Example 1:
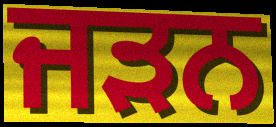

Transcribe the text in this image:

ਜੜਨ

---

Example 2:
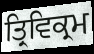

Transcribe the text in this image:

ਤ੍ਰਿਵਿਕ੍ਰਮ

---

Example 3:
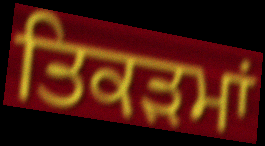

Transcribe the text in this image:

ਤਿਕੜਮਾਂ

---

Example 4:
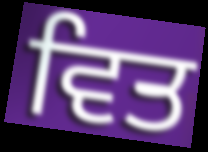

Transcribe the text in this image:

ਵਿਤ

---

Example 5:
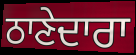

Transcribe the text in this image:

ਠਾਣੇਦਾਰਾ